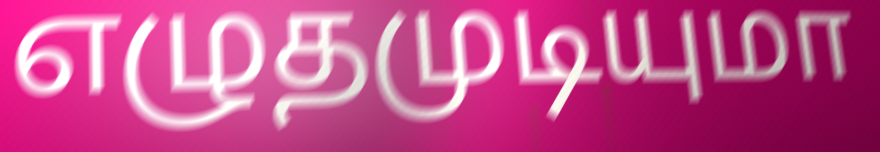
எழுதமுடியுமா